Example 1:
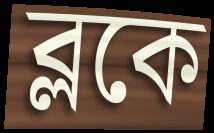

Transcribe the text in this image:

ব্লকে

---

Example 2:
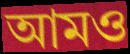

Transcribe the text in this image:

আমও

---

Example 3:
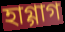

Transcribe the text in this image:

হাগ্গাগ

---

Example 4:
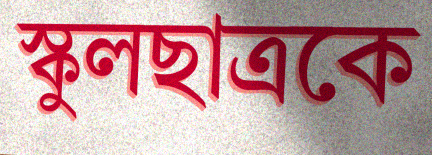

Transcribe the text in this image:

স্কুলছাত্রকে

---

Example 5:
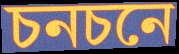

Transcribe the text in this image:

চনচনে